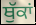
ਥੁੱਕਾਂ